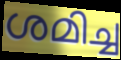
ശമിച്ച